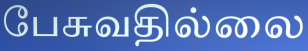
பேசுவதில்லை